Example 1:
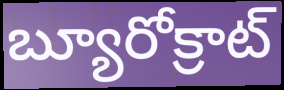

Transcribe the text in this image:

బ్యూరోక్రాట్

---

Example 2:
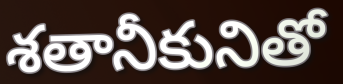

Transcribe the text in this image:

శతానీకునితో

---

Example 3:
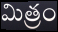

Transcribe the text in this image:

మిత్రం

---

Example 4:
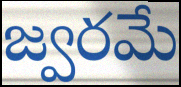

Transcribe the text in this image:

జ్వరమే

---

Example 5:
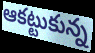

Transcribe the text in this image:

ఆకట్టుకున్న